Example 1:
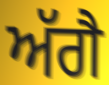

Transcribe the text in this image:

ਅੱਗੈ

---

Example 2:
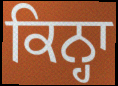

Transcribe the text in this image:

ਕਿਨ੍ਹਾ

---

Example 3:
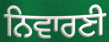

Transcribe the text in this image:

ਨਿਵਾਰਣੀ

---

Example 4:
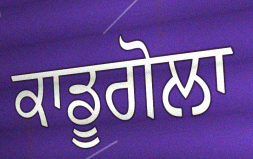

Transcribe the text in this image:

ਕਾਡੂਗੋਲਾ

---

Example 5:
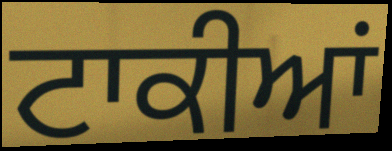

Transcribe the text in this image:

ਟਾਕੀਆਂ